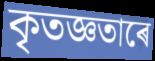
কৃতজ্ঞতাৰে